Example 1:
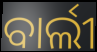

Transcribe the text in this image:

ବାର୍ଲୀ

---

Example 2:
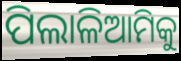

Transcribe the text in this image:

ପିଲାଳିଆମିକୁ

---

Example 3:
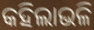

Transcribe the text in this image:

କହିଲାଭଳି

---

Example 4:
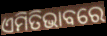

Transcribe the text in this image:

ଏମିତିଭାବରେ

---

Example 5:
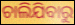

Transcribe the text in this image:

ଚାଲିଯିବାରୁ